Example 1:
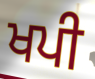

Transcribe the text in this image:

ਖਪੀ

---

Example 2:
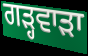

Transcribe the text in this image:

ਗੜ੍ਹਵਾੜਾ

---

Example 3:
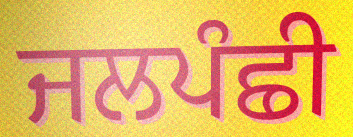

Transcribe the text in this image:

ਜਲਪੰਛੀ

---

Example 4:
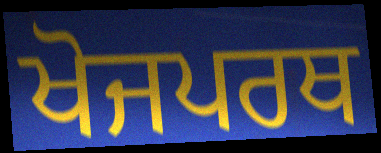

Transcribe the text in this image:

ਖੋਜਪਰਥ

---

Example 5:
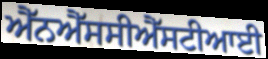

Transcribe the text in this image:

ਐੱਨਐੱਸਸੀਐੱਸਟੀਆਈ